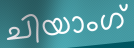
ചിയാംഗ്